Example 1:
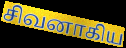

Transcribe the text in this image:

சிவனாகிய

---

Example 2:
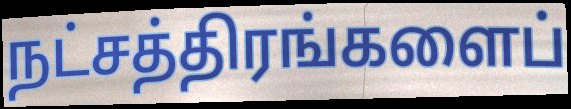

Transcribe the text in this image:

நட்சத்திரங்களைப்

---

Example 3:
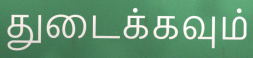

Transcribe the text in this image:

துடைக்கவும்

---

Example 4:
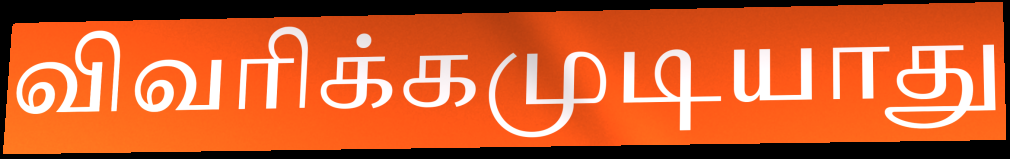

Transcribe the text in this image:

விவரிக்கமுடியாது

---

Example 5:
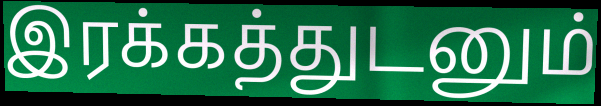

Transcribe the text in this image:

இரக்கத்துடனும்